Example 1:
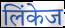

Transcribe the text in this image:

लिंकेज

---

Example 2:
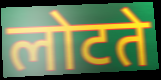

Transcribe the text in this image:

लोटते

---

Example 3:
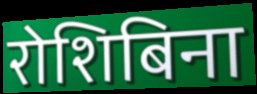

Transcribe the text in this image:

रोशिबिना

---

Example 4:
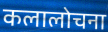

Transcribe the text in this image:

कलालोचना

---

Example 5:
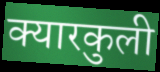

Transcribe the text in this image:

क्यारकुली